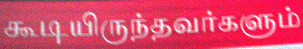
கூடியிருந்தவர்களும்